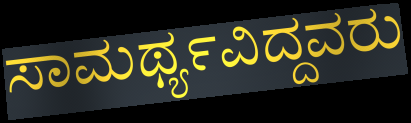
ಸಾಮರ್ಥ್ಯವಿದ್ದವರು